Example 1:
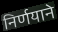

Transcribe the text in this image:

निर्णयाने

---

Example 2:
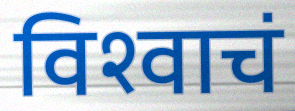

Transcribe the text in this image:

विश्वाचं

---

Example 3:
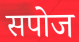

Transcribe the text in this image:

सपोज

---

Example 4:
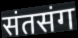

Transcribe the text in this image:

संतसंग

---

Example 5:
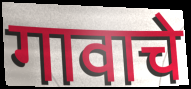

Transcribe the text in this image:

गावाचे